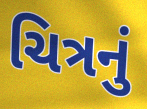
ચિત્રનું